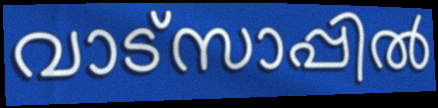
വാട്സാപ്പിൽ